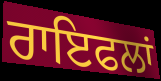
ਰਾਇਫਲਾਂ